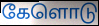
கேளொடு